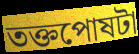
তক্তপোষটা